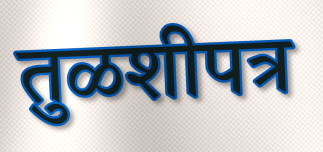
तुळशीपत्र